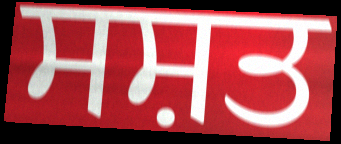
ਸਸ਼ਤ